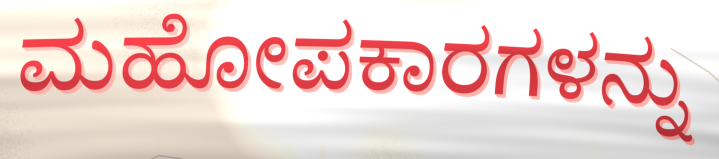
ಮಹೋಪಕಾರಗಳನ್ನು